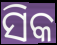
ସିକ